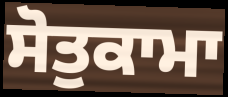
ਸੋਤੁਕਾਮਾ